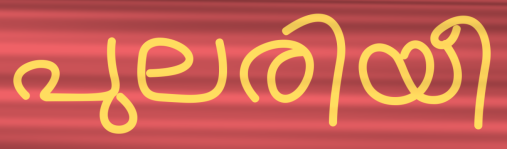
പുലരിയീ